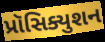
પ્રૉસિક્યુશન